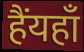
हैंयहाँ